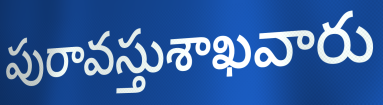
పురావస్తుశాఖవారు